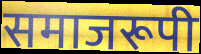
समाजरूपी